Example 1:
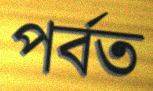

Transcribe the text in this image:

পৰ্বত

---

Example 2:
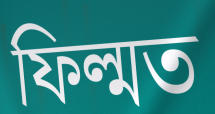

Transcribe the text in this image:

ফিল্মত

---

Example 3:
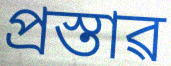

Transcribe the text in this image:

প্ৰস্তাৱ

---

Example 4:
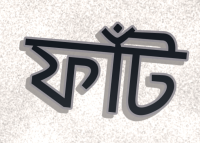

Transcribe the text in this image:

ফাঁট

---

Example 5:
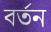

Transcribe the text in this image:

বৰ্তন